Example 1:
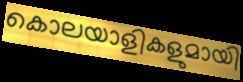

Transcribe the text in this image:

കൊലയാളികളുമായി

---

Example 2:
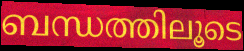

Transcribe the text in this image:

ബന്ധത്തിലൂടെ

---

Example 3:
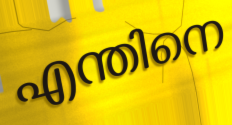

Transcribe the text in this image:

എന്തിനെ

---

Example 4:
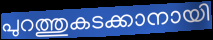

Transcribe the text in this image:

പുറത്തുകടക്കാനായി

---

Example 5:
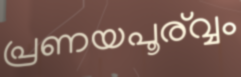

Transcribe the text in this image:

പ്രണയപൂര്വ്വം